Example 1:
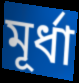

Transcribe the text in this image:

মূর্ধা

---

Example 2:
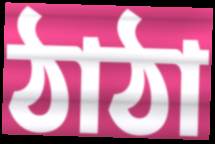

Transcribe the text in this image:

ঠাঠা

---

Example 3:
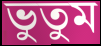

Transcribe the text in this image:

ভুতুম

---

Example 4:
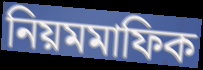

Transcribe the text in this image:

নিয়মমাফিক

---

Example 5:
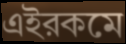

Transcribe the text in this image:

এইরকমে